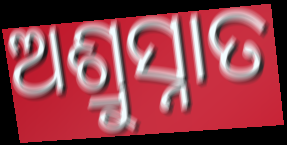
ଅଶ୍ରୁସ୍ନାତ